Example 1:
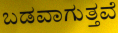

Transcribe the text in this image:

ಬಡವಾಗುತ್ತವೆ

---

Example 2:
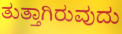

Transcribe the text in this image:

ತುತ್ತಾಗಿರುವುದು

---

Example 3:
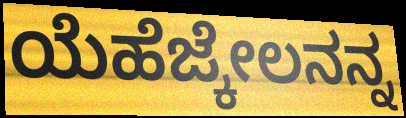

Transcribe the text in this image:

ಯೆಹೆಜ್ಕೇಲನನ್ನ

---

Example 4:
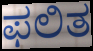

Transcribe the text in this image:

ಫಲಿತ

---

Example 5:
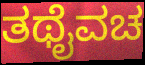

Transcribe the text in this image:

ತಥೈವಚ